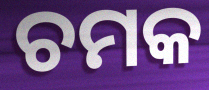
ଚମକ